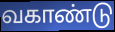
வகாண்டு